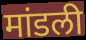
मांडली